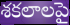
శకలాలపై